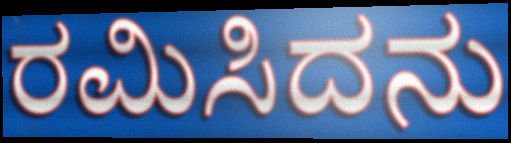
ರಮಿಸಿದನು